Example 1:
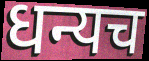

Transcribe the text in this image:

धन्यच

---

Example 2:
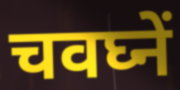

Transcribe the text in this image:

चवघ्नें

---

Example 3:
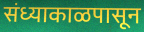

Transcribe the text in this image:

संध्याकाळपासून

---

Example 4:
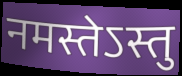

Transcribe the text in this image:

नमस्तेऽस्तु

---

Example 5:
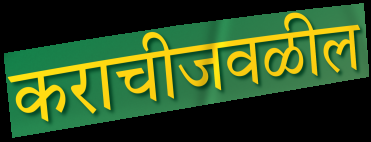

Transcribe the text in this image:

कराचीजवळील